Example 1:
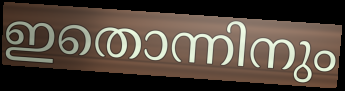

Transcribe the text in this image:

ഇതൊന്നിനും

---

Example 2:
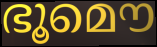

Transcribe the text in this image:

ഭൂമൌ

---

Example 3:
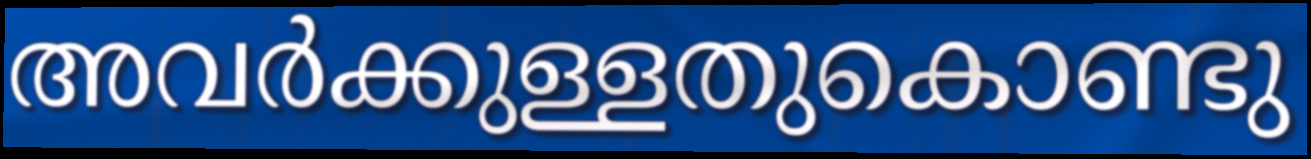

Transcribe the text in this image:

അവർക്കുള്ളതുകൊണ്ടു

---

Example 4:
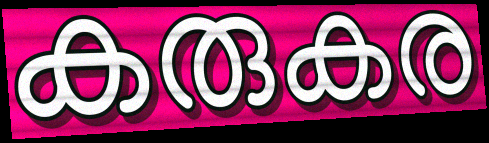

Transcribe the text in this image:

കരുകര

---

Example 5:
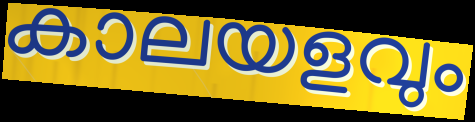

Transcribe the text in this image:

കാലയളവും